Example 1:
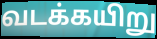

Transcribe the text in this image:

வடக்கயிறு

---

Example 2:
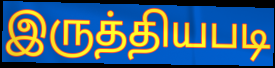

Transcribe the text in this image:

இருத்தியபடி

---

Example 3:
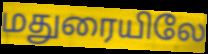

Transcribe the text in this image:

மதுரையிலே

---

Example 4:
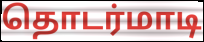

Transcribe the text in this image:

தொடர்மாடி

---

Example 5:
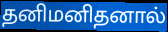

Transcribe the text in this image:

தனிமனிதனால்